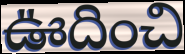
ఊదించి